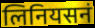
लिनियसनं